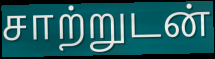
சாற்றுடன்